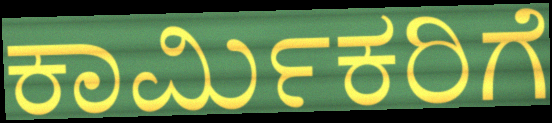
ಕಾರ್ಮಿಕರಿಗೆ